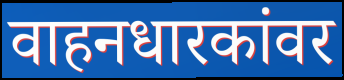
वाहनधारकांवर